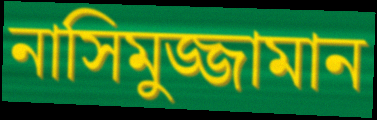
নাসিমুজ্জামান